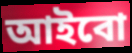
আইবো